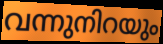
വന്നുനിറയും